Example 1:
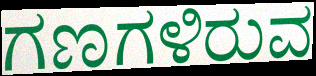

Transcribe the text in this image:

ಗಣಗಳಿರುವ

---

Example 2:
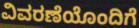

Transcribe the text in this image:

ವಿವರಣೆಯೊಂದಿಗೆ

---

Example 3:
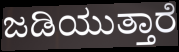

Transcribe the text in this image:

ಜಡಿಯುತ್ತಾರೆ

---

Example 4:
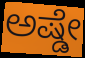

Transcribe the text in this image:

ಅಷ್ಡೇ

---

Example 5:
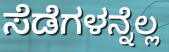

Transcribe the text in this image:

ಸೆಡೆಗಳನ್ನೆಲ್ಲ